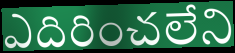
ఎదిరించలేని